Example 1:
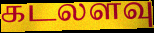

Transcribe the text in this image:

கடலளவு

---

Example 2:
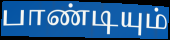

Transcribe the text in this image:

பாண்டியும்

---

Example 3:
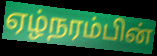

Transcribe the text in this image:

ஏழ்நரம்பின்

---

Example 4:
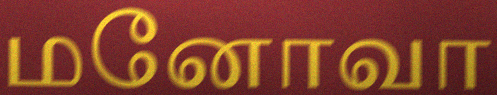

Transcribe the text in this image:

மனோவா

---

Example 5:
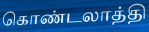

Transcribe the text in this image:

கொண்டலாத்தி